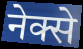
नेक्से